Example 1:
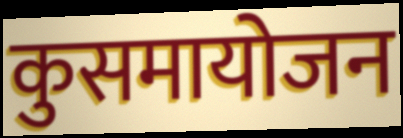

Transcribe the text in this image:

कुसमायोजन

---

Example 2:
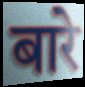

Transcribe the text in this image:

बारे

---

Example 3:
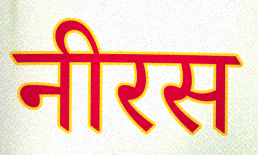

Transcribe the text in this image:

नीरस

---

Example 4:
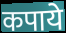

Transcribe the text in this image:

कपाये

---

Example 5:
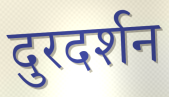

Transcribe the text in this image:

दुरदर्शन